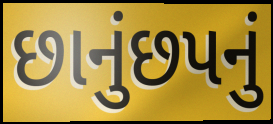
છાનુંછપનું